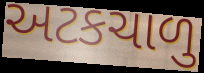
અટકચાળુ